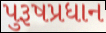
પુરૂષપ્રધાન